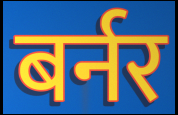
बर्नर